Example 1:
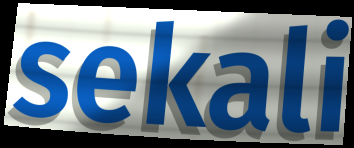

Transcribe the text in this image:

sekali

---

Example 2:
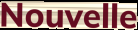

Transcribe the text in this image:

Nouvelle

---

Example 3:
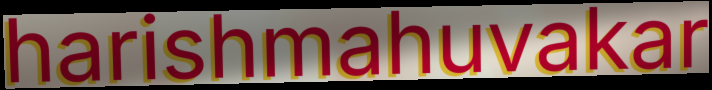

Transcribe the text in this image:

harishmahuvakar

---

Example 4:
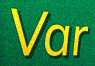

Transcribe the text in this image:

Var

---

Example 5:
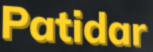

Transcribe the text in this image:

Patidar